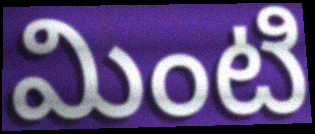
మింటి